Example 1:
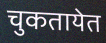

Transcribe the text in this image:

चुकतायेत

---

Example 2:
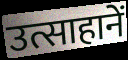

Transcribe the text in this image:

उत्साहानें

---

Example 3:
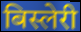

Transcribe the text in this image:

बिस्लेरी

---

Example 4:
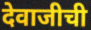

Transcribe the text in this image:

देवाजीची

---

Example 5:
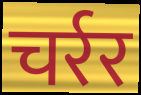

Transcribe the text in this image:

चर्रर